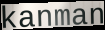
kanman